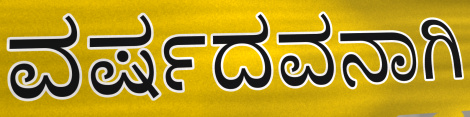
ವರ್ಷದವನಾಗಿ